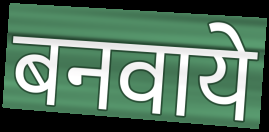
बनवाये